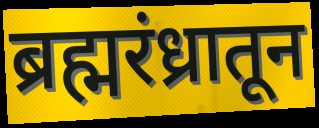
ब्रह्मरंध्रातून